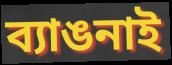
ব্যাঙনাই